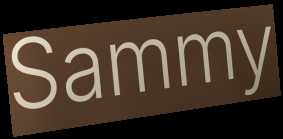
Sammy